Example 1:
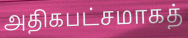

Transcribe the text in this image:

அதிகபட்சமாகத்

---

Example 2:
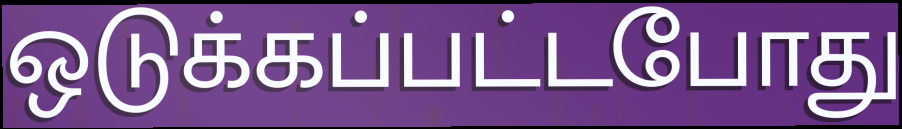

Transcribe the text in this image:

ஒடுக்கப்பட்டபோது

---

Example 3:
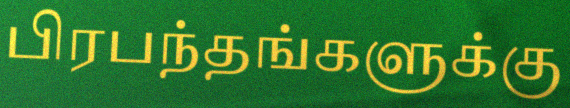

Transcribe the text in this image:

பிரபந்தங்களுக்கு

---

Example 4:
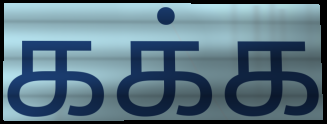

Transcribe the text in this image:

கக்க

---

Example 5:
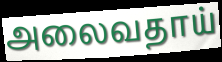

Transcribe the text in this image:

அலைவதாய்